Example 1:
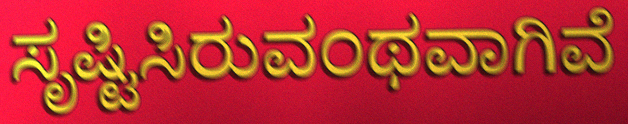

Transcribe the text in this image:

ಸೃಷ್ಟಿಸಿರುವಂಥವಾಗಿವೆ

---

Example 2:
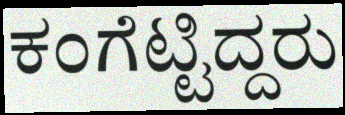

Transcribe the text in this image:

ಕಂಗೆಟ್ಟಿದ್ದರು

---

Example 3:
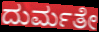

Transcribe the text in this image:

ದುರ್ಮತೇ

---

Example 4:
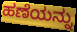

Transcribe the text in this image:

ಹಣೆಯನ್ನು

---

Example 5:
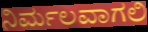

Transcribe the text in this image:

ನಿರ್ಮಲವಾಗಲಿ